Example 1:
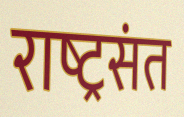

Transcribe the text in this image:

राष्ट्रसंत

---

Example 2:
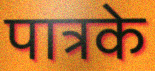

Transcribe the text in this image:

पात्रके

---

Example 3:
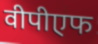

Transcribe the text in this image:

वीपीएफ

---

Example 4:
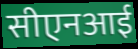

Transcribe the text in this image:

सीएनआई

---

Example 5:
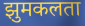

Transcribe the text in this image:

झुमकलता